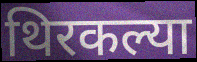
थिरकल्या